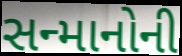
સન્માનોની